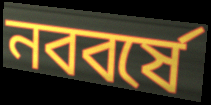
নববর্ষে